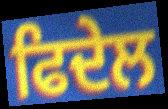
ਫਿਦੇਲ